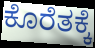
ಕೊರೆತಕ್ಕೆ